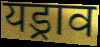
यड्राव